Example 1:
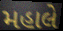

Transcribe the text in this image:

મહાલે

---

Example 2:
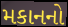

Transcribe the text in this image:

મકાનનો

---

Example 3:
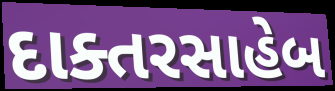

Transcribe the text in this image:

દાક્તરસાહેબ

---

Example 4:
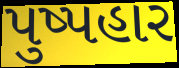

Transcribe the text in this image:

પુષ્પહાર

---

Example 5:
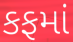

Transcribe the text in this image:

કફમાં